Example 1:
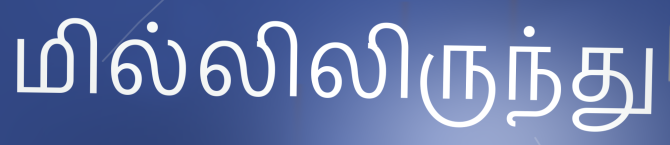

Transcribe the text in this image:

மில்லிலிருந்து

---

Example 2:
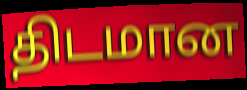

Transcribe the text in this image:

திடமான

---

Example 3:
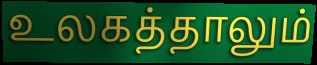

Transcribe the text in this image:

உலகத்தாலும்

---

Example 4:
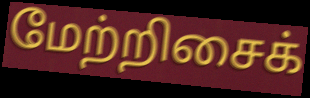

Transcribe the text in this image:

மேற்றிசைக்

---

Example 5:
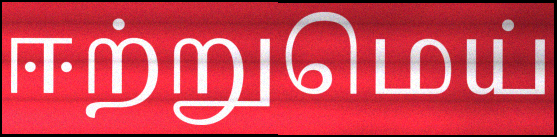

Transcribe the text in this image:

ஈற்றுமெய்